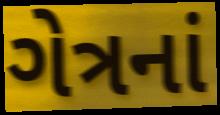
ગેત્રનાં